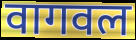
वागवल